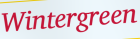
Wintergreen